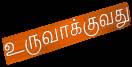
உருவாக்குவது